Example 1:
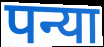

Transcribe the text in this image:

पन्या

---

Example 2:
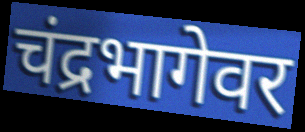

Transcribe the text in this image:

चंद्रभागेवर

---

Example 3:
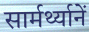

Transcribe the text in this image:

सार्मर्थ्यानें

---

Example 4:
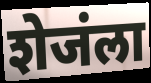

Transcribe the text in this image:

शेजंला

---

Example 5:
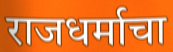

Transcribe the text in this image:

राजधर्माचा